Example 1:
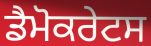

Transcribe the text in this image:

ਡੈਮੋਕਰੇਟਸ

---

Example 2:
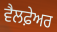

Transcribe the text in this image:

ਵੈਲਫ਼ੇਅਰ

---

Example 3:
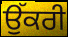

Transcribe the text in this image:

ਉੱਕਰੀ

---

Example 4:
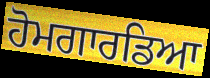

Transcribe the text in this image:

ਹੋਮਗਾਰਡਿਆ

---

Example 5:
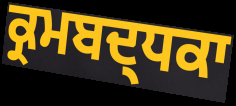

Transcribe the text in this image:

ਕ੍ਰਮਬਦ੍ਧਕਾ